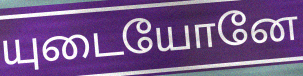
யுடையோனே